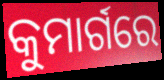
କୁମାର୍ଗରେ